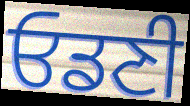
ਓਡਣੀ